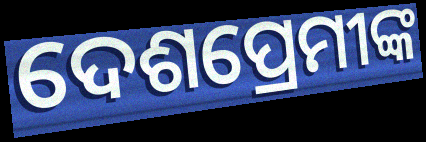
ଦେଶପ୍ରେମୀଙ୍କ